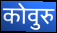
कोवुरु